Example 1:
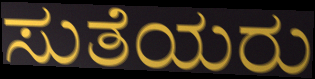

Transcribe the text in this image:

ಸುತೆಯರು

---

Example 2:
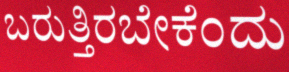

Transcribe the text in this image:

ಬರುತ್ತಿರಬೇಕೆಂದು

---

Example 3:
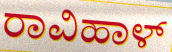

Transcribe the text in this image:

ರಾವಿಹಾಳ್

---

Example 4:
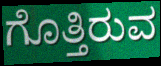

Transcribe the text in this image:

ಗೊತ್ತಿರುವ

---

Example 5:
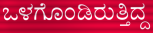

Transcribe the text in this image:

ಒಳಗೊಂಡಿರುತ್ತಿದ್ದ